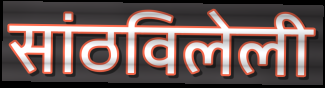
सांठविलेली